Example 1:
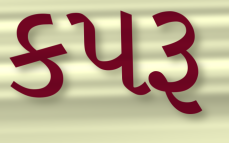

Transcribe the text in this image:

કપરૂ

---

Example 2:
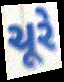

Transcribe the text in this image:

ચૂરે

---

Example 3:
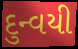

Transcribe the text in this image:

દુન્વયી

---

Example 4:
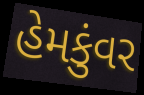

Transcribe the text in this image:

હેમકુંવર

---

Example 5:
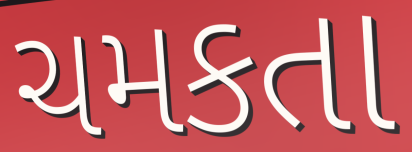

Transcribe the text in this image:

ચમકતા